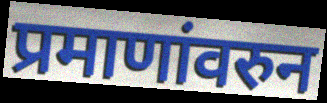
प्रमाणांवरुन